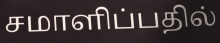
சமாளிப்பதில்